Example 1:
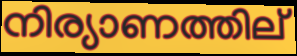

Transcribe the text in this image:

നിര്യാണത്തില്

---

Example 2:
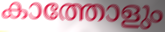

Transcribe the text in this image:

കാത്തോളും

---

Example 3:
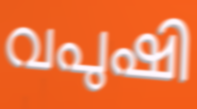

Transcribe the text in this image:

വപുഷി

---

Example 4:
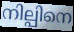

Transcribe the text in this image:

നില്പിനെ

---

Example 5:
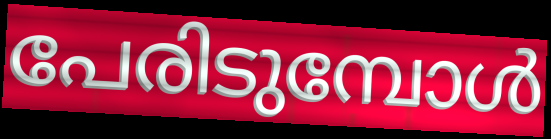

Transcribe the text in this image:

പേരിടുമ്പോൾ